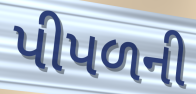
પીપળની